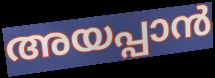
അയപ്പാൻ